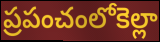
ప్రపంచంలోకెల్లా